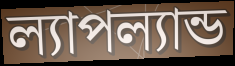
ল্যাপল্যান্ড